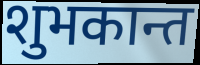
शुभकान्त